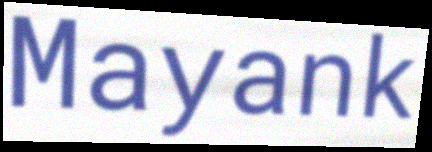
Mayank